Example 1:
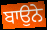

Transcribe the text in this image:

ਬਾਉਨੇ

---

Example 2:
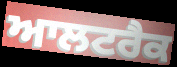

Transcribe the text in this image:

ਆਲਟਰੈਕ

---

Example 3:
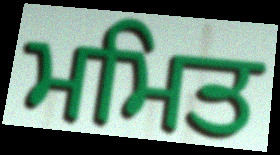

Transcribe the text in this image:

ਮਮਿਤ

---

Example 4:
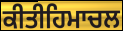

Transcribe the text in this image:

ਕੀਤੀਹਿਮਾਚਲ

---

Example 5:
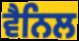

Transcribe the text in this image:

ਵੈਨਿਲ